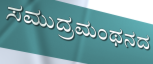
ಸಮುದ್ರಮಂಥನದ